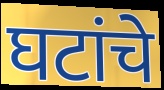
घटांचे